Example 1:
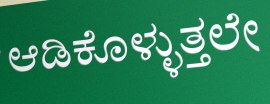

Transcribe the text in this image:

ಆಡಿಕೊಳ್ಳುತ್ತಲೇ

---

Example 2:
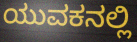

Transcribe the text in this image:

ಯುವಕನಲ್ಲಿ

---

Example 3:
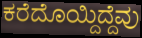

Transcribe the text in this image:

ಕರೆದೊಯ್ದಿದ್ದೆವು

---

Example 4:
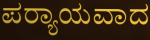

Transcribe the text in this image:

ಪರ‍್ಯಾಯವಾದ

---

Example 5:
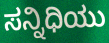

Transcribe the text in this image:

ಸನ್ನಿಧಿಯು